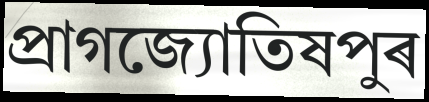
প্ৰাগজ্যোতিষপুৰ